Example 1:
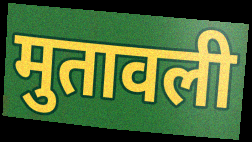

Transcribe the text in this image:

मुतावली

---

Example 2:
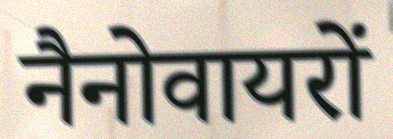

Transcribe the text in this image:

नैनोवायरों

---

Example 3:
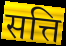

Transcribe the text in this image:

सत्ति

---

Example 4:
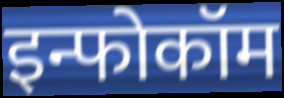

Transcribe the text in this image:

इन्फोकॉम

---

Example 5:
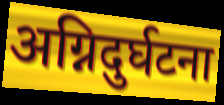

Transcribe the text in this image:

अग्निदुर्घटना